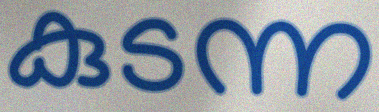
കുടന്ന